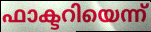
ഫാക്ടറിയെന്ന്